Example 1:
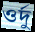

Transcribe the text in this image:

ওর্দু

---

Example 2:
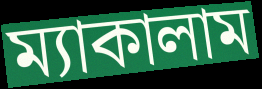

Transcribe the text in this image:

ম্যাকালাম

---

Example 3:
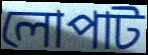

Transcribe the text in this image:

লোপাট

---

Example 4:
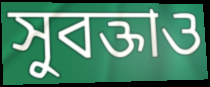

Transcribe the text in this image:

সুবক্তাও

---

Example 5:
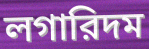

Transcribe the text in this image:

লগারিদম